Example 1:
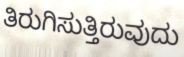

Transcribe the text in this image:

ತಿರುಗಿಸುತ್ತಿರುವುದು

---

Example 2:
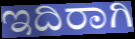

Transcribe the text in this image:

ಇದಿರಾಗಿ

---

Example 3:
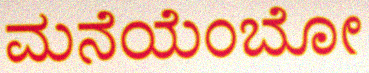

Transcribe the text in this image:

ಮನೆಯೆಂಬೋ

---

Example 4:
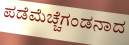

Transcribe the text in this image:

ಪಡೆಮೆಚ್ಚೆಗಂಡನಾದ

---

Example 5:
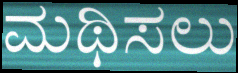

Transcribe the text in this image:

ಮಥಿಸಲು